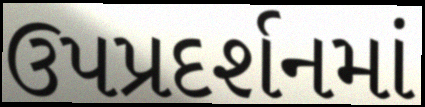
ઉપપ્રદર્શનમાં